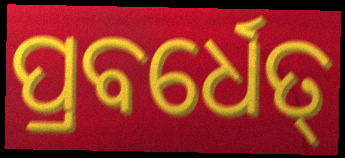
ପ୍ରବର୍ଧେତ୍